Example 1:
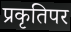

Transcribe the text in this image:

प्रकृतिपर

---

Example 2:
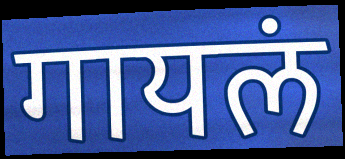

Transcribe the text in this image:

गायलं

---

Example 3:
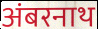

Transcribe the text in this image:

अंबरनाथ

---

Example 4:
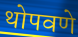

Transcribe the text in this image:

थोपवणे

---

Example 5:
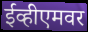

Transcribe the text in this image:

ईव्हीएमवर